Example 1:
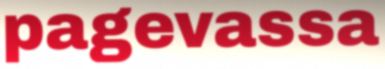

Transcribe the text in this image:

pagevassa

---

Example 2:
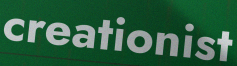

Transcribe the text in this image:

creationist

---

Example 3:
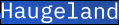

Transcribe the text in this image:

Haugeland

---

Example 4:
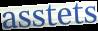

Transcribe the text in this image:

asstets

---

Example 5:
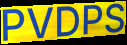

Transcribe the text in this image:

PVDPS